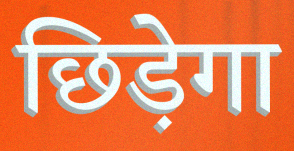
छिड़ेगा